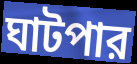
ঘাটপার